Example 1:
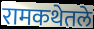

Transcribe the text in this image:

रामकथेतले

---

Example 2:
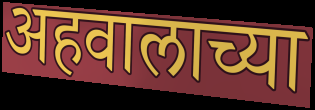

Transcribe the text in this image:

अहवालाच्या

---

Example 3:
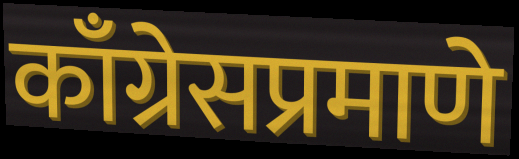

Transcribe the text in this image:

काँग्रेसप्रमाणे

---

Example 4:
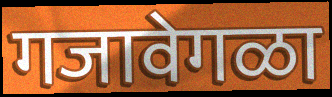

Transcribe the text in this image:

गजावेगळा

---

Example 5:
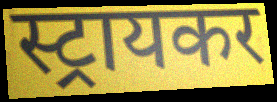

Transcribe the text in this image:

स्ट्रायकर